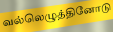
வல்லெழுத்தினோடு